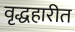
वृद्धहारीत